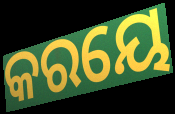
କରୟେ